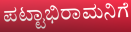
ಪಟ್ಟಾಭಿರಾಮನಿಗೆ